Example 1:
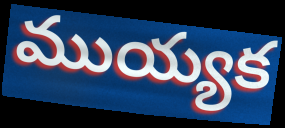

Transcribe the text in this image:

ముయ్యక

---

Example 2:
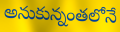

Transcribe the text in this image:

అనుకున్నంతలోనే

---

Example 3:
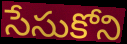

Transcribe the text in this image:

సేసుకోని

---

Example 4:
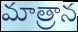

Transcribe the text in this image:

మాత్రాన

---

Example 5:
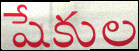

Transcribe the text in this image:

షేకుల